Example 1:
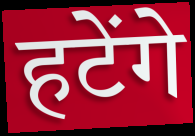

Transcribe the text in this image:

हटेंगे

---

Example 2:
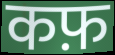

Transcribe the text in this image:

कफ़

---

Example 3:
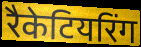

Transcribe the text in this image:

रैकेटियरिंग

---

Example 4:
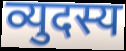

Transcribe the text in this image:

व्युदस्य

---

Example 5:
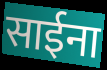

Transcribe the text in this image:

साईना